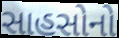
સાહસોનો